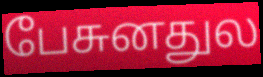
பேசுனதுல